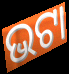
ଭଟା